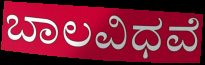
ಬಾಲವಿಧವೆ